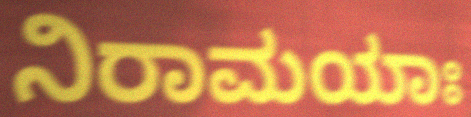
ನಿರಾಮಯಾಃ